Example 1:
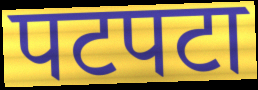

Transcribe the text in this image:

पटपटा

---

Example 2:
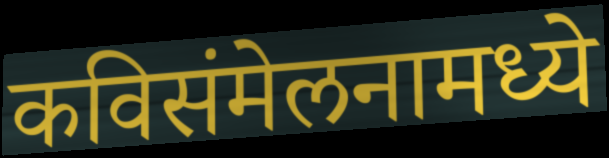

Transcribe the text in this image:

कविसंमेलनामध्ये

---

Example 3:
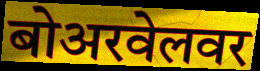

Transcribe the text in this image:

बोअरवेलवर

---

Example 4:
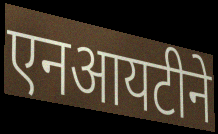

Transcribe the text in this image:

एनआयटीने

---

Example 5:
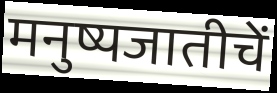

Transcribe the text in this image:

मनुष्यजातीचें